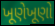
ખૂણેખૂણો